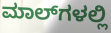
ಮಾಲ್‌ಗಳಲ್ಲಿ